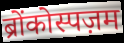
ब्रोंकोस्पज़म